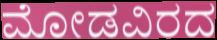
ಮೋಡವಿರದ